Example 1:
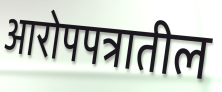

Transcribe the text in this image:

आरोपपत्रातील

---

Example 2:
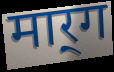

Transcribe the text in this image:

मार्ग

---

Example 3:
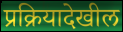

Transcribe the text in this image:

प्रक्रियादेखील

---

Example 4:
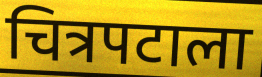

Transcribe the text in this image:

चित्रपटाला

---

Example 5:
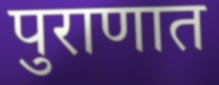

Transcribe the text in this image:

पुराणात